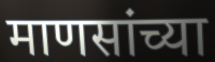
माणसांच्या